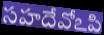
సహదేవోఽపి